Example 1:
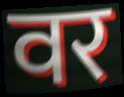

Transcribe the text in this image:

वर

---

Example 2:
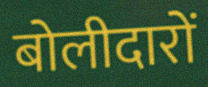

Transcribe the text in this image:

बोलीदारों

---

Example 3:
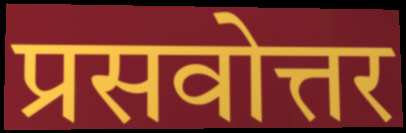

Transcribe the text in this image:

प्रसवोत्तर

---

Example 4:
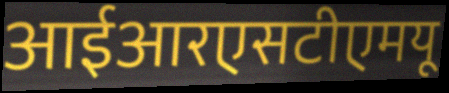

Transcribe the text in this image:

आईआरएसटीएमयू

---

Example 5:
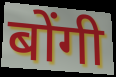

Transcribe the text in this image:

बोंगी